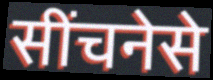
सींचनेसे